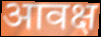
आवक्ष